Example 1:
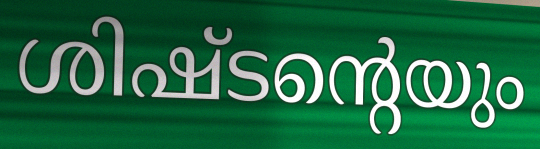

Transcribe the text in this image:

ശിഷ്ടന്റെയും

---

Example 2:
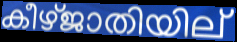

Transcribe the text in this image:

കീഴ്ജാതിയില്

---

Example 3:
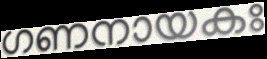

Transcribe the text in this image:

ഗണനായകഃ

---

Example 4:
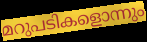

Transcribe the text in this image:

മറുപടികളൊന്നും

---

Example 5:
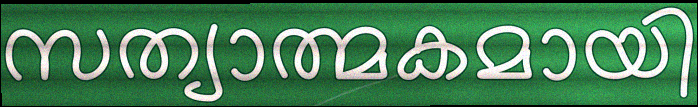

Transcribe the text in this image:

സത്യാത്മകമായി